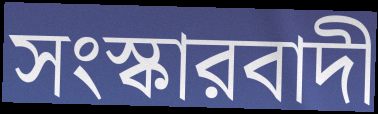
সংস্কারবাদী